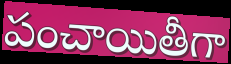
పంచాయితీగా